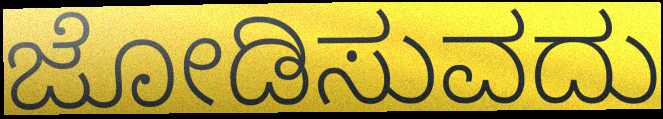
ಜೋಡಿಸುವದು